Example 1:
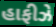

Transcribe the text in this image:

હાફીઝે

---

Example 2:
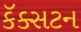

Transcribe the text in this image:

કૅક્સટન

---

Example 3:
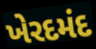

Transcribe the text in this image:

ખેરદમંદ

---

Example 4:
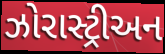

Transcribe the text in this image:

ઝોરાસ્ટ્રીઅન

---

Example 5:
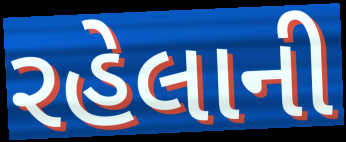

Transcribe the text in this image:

રહેલાની